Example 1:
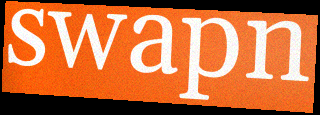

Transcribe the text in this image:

swapn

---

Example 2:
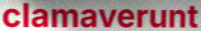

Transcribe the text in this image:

clamaverunt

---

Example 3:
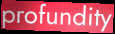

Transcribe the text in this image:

profundity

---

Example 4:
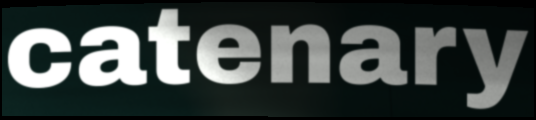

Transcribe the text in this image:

catenary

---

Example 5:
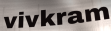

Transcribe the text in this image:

vivkram